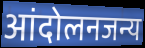
आंदोलनजन्य